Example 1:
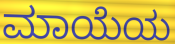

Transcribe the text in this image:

ಮಾಯೆಯ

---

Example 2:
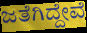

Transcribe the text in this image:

ಜತೆಗಿದ್ದೇವೆ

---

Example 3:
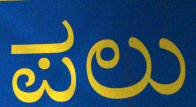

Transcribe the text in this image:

ಪಲು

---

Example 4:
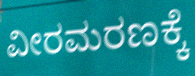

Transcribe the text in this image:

ವೀರಮರಣಕ್ಕೆ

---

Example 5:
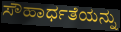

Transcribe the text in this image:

ಸೌಹಾರ್ಧತೆಯನ್ನು